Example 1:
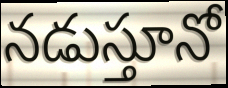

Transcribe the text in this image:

నడుస్తూనో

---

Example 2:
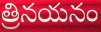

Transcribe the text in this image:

త్రినయనం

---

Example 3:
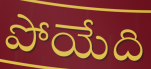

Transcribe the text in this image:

పోయేది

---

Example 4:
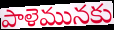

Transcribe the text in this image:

పాళెమునకు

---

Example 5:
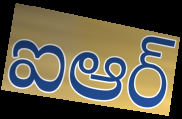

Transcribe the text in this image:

ఐఆర్